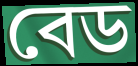
বেড